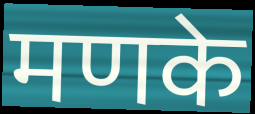
मणके